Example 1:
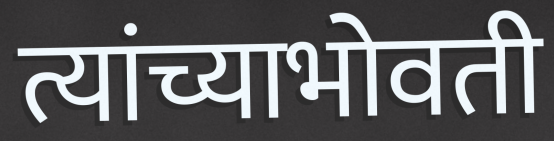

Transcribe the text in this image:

त्यांच्याभोवती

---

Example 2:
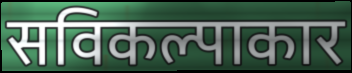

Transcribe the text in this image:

सविकल्पाकार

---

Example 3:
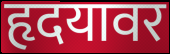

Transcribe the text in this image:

हृदयावर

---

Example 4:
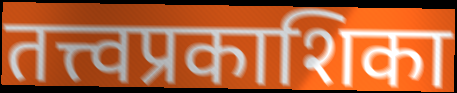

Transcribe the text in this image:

तत्त्वप्रकाशिका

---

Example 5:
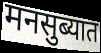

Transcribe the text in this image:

मनसुब्यात